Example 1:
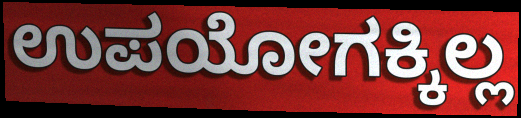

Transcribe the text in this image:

ಉಪಯೋಗಕ್ಕಿಲ್ಲ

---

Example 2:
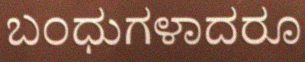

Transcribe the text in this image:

ಬಂಧುಗಳಾದರೂ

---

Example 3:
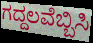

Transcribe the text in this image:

ಗದ್ದಲವೆಬ್ಬಿಸಿ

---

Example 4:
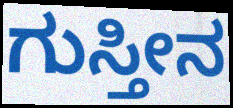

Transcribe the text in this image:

ಗುಸ್ತೀನ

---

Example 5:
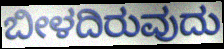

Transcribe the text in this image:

ಬೀಳದಿರುವುದು